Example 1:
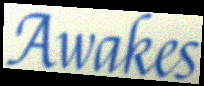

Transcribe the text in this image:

Awakes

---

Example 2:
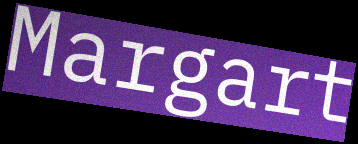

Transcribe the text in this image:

Margart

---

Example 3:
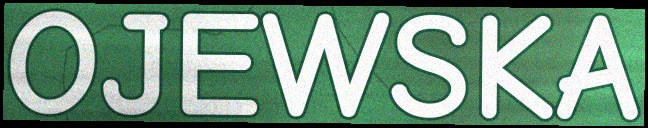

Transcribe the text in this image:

OJEWSKA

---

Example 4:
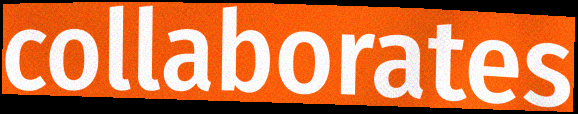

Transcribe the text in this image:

collaborates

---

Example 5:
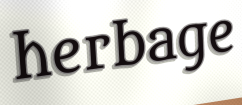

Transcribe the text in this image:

herbage